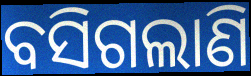
ବସିଗଲାଣି